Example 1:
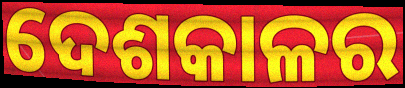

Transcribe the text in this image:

ଦେଶକାଳର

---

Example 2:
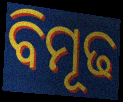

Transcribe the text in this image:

ବିମୂଢ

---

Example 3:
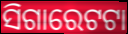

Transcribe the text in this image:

ସିଗାରେଟଟା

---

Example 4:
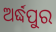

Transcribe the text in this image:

ଅର୍ଦ୍ଧପୁର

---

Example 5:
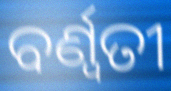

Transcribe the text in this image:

ବର୍ଣ୍ବତୀ